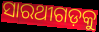
ସାରଥୀଗଡ଼କୁ